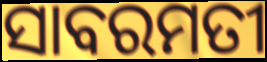
ସାବରମତୀ